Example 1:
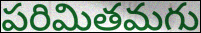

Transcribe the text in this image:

పరిమితమగు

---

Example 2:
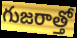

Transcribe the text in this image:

గుజరాత్తో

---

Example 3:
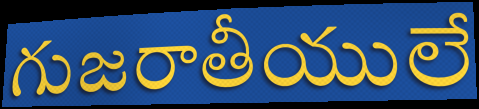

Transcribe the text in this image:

గుజరాతీయులే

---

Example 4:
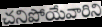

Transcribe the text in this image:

చనిపోయేవారిని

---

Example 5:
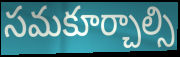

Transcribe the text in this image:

సమకూర్చాల్సి